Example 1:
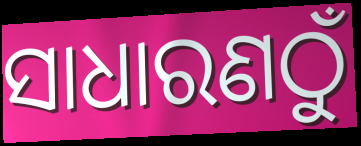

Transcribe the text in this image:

ସାଧାରଣଠୁଁ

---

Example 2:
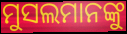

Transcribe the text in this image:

ମୁସଲମାନଙ୍କୁ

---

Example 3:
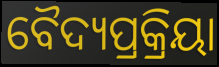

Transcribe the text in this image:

ବୈଦ୍ୟପ୍ରକ୍ରିୟା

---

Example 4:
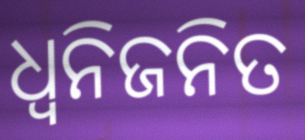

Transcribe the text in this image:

ଧ୍ଵନିଜନିତ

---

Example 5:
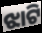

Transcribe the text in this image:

ଝାଟି